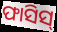
ଫାସିସ୍